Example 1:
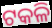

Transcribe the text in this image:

ଟକଳି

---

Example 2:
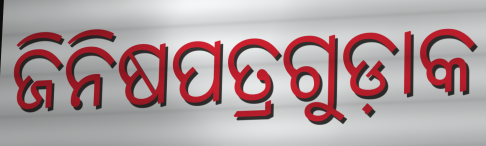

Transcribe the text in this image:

ଜିନିଷପତ୍ରଗୁଡ଼ାକ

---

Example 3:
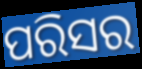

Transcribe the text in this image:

ପରିସର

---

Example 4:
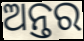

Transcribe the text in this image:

ଅନ୍ତର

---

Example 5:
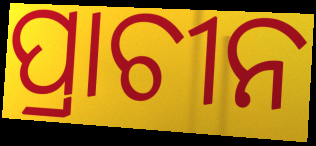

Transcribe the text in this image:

ପ୍ରାଚୀନ